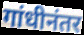
गांधीनंतर